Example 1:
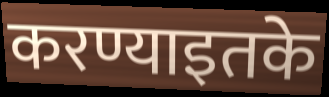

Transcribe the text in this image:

करण्याइतके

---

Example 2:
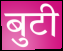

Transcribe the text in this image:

बुटी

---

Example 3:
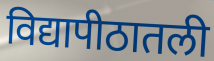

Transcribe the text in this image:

विद्यापीठातली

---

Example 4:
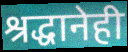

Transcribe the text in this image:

श्रद्धानेही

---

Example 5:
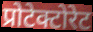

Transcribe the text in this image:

प्रोटेक्टोरेट